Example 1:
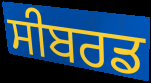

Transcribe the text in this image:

ਸੀਬਰਡ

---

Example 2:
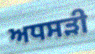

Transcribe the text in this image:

ਅਧਸੜੀ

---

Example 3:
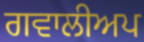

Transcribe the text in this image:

ਗਵਾਲੀਅਪ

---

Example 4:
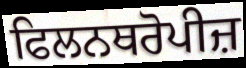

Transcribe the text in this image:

ਫਿਲਨਥਰੋਪੀਜ਼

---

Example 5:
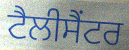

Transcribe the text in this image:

ਟੈਲੀਸੈਂਟਰ